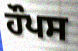
ਹੌਪਸ